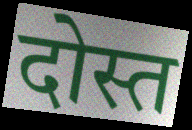
दोस्त